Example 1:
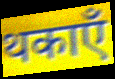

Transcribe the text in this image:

थकाएँ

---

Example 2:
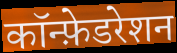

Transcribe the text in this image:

कॉन्फ़ेडरेशन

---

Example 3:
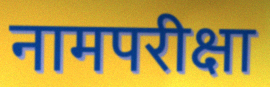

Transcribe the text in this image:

नामपरीक्षा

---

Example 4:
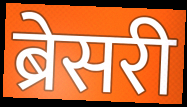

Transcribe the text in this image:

ब्रेसरी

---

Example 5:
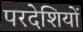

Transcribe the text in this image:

परदेशियों